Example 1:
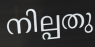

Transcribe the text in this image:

നില്പതു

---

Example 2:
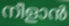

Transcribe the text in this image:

നീളാൻ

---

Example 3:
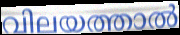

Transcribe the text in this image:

വിലയത്താൽ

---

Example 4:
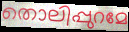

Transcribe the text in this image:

തൊലിപ്പുറമേ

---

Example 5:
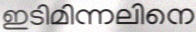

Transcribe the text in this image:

ഇടിമിന്നലിനെ